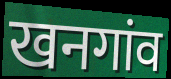
खनगांव